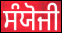
ਸੰਯੋਜੀ